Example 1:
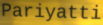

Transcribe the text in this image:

Pariyatti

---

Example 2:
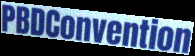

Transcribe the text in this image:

PBDConvention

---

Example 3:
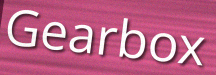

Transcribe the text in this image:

Gearbox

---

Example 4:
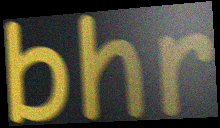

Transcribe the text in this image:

bhr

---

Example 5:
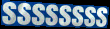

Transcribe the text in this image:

ssssssss